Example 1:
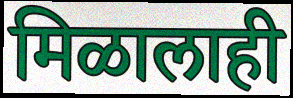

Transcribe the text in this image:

मिळालाही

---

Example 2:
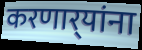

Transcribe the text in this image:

करणार्‍यांना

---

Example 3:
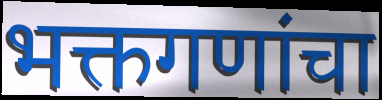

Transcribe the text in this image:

भक्तगणांचा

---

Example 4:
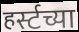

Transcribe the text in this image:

हर्स्टच्या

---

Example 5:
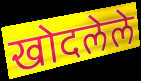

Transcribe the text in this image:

खोदलेले